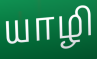
யாழி